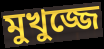
মুখুজ্জে